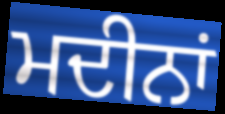
ਮਦੀਨਾਂ